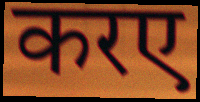
करए